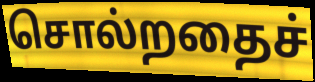
சொல்றதைச்